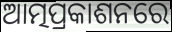
ଆତ୍ମପ୍ରକାଶନରେ